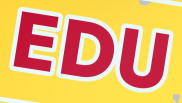
EDU